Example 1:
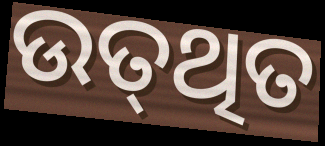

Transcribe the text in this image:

ଉତ୍‍ଥିତ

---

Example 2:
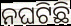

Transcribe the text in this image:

ନଘଟିଛି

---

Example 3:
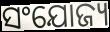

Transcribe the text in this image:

ସଂଯୋଜ୍ୟ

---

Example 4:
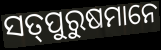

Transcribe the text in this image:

ସତ୍‌ପୁରୁଷମାନେ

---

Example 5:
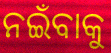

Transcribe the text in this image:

ନଇଁବାକୁ